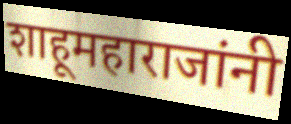
शाहूमहाराजांनी